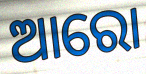
ଆରୋ